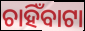
ଚାହିଁବାଟା